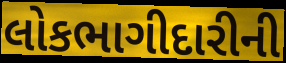
લોકભાગીદારીની